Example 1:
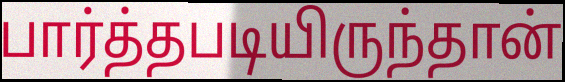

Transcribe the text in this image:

பார்த்தபடியிருந்தான்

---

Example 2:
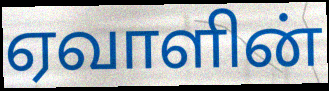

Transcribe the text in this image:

ஏவாளின்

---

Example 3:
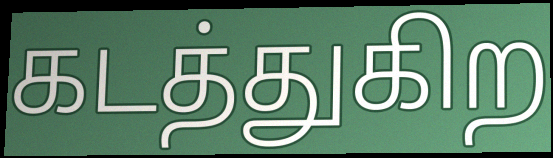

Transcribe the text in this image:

கடத்துகிற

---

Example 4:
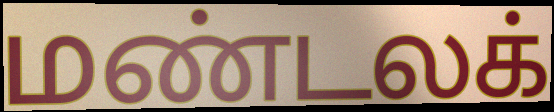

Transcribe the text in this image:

மண்டலக்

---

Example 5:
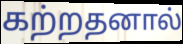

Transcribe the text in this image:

கற்றதனால்